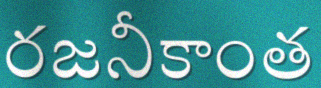
రజనీకాంత